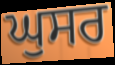
ਘੁਸਰ